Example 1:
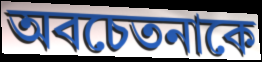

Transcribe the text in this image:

অবচেতনাকে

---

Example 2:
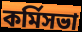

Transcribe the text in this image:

কর্মিসভা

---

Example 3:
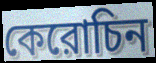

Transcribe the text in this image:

কেরোচিন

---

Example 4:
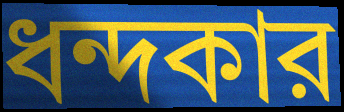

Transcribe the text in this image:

ধন্দকার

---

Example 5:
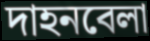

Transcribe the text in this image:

দাহনবেলা